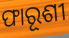
ଫାରୂଶୀ